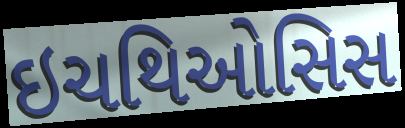
ઇચથિઓસિસ